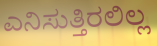
ಎನಿಸುತ್ತಿರಲಿಲ್ಲ